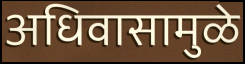
अधिवासामुळे